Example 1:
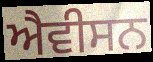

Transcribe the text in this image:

ਐਵੀਸਨ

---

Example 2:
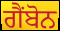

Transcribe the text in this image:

ਗੈਂਬੋਨ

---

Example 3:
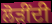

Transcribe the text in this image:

ਲੋੜੀਂਦੀ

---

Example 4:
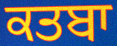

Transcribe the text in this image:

ਕਤਬਾ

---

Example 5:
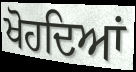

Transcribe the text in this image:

ਖੋਹਦਿਆਂ